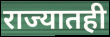
राज्यातही